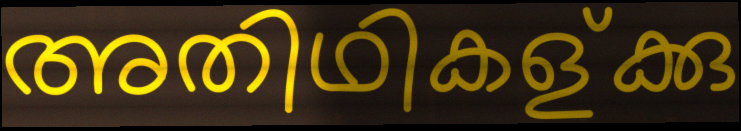
അതിഥികള്ക്കു